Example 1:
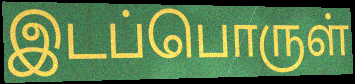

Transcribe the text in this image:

இடப்பொருள்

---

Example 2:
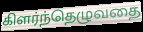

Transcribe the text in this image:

கிளர்ந்தெழுவதை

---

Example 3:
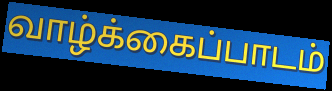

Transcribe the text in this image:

வாழ்க்கைப்பாடம்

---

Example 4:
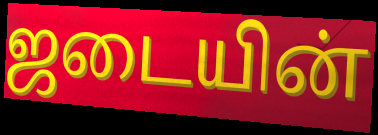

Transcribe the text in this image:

ஜடையின்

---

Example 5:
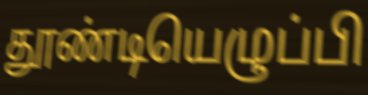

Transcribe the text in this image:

தூண்டியெழுப்பி